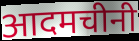
आदमचीनी